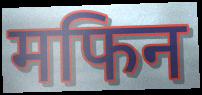
मफिन